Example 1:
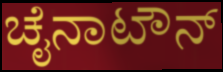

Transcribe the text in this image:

ಚೈನಾಟೌನ್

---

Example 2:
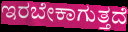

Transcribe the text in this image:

ಇರಬೇಕಾಗುತ್ತದೆ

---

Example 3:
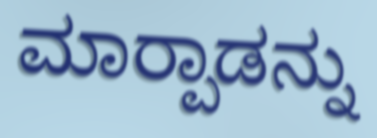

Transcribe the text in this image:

ಮಾರ‍್ಪಾಡನ್ನು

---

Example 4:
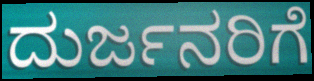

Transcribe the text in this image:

ದುರ್ಜನರಿಗೆ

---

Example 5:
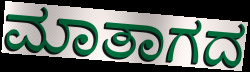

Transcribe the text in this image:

ಮಾತಾಗದ